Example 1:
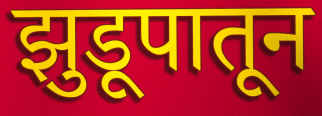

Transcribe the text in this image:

झुडूपातून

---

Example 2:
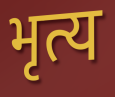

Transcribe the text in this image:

भृत्य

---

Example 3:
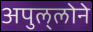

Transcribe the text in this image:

अपुल्लोने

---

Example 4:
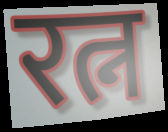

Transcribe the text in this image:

रत्न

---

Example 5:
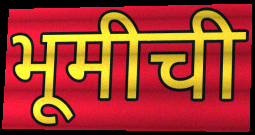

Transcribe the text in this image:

भूमीची